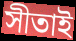
সীতাই